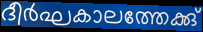
ദീർഘകാലത്തേക്കു്